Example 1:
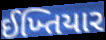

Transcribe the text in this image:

ઈખ્તિયાર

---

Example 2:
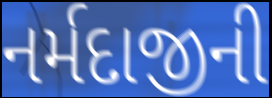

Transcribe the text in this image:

નર્મદાજીની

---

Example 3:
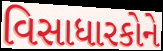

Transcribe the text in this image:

વિસાધારકોને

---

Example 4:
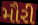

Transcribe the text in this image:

મૌરી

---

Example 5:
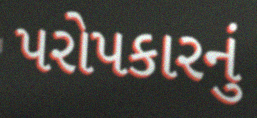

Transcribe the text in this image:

પરોપકારનું